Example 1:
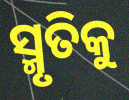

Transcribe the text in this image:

ସ୍ମୃତିକୁ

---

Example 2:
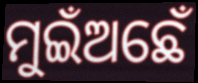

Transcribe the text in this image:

ମୁଇଁଅଛେଁ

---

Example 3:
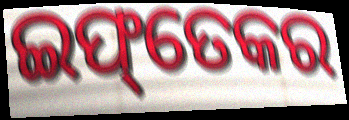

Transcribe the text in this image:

ଇଫ୍‌ତେକର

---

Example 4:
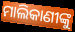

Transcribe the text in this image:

ମାଲିକାଣୀଙ୍କୁ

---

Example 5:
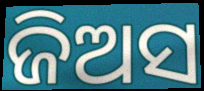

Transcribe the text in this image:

ଜିଅସ